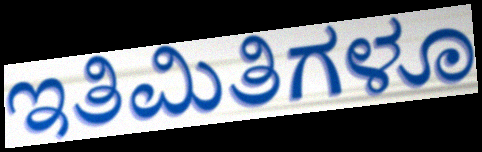
ಇತಿಮಿತಿಗಳೂ